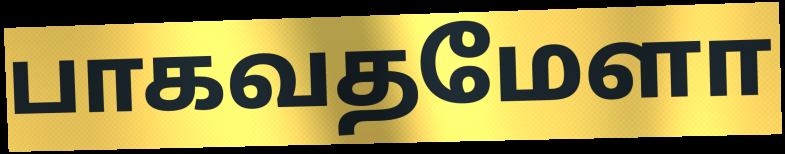
பாகவதமேளா